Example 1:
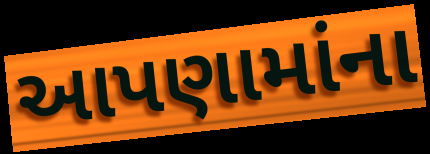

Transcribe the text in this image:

આપણામાંના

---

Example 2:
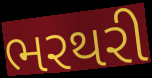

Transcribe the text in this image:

ભરથરી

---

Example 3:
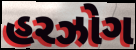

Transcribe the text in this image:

હરઝોગ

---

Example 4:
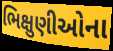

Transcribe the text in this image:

ભિક્ષુણીઓના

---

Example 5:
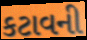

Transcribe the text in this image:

કટાવની